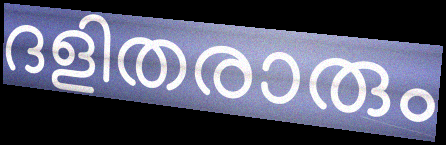
ദളിതരാരും